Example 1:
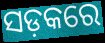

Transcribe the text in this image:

ସଡ଼କରେ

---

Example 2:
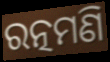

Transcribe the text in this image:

ରତ୍ନମଣି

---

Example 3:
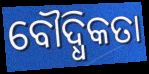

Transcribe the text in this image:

ବୌଦ୍ଧିକତା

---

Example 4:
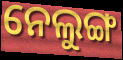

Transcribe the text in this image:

ନେଲୁଙ୍ଗ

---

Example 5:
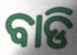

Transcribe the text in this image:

ବାଡି